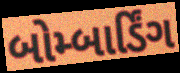
બોમ્બાર્ડિંગ